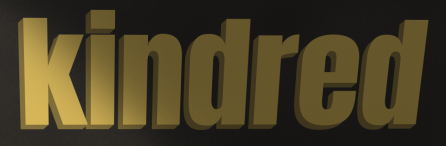
kindred